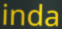
inda